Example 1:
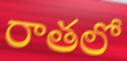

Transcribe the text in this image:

రాతలో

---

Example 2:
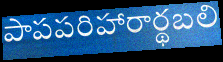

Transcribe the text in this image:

పాపపరిహారార్థబలి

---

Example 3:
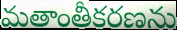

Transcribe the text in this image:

మతాంతీకరణను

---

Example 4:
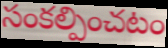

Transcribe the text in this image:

సంకల్పించటం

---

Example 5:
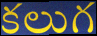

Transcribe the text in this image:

కలుగ